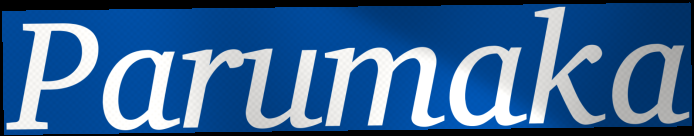
Parumaka